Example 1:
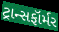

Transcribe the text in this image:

ટ્રાન્સફૉર્મર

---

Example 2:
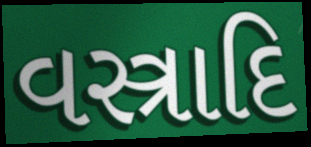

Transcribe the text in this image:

વસ્ત્રાદિ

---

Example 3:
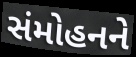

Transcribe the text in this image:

સંમોહનને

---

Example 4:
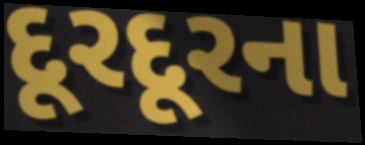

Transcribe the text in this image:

દૂરદૂરના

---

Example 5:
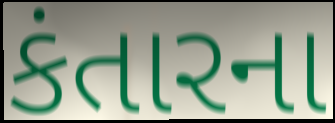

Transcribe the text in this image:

કંતારના